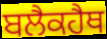
ਬਲੈਕਹੈਥ